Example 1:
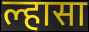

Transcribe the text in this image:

ल्हासा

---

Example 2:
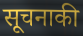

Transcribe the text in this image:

सूचनाकी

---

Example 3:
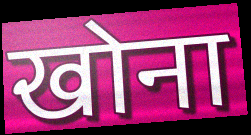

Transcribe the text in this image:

खोना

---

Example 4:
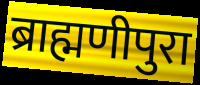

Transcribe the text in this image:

ब्राह्मणीपुरा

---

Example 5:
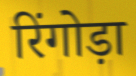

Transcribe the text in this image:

रिंगोड़ा